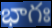
భాగః